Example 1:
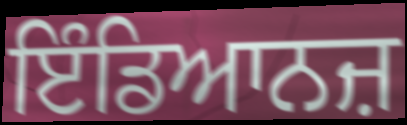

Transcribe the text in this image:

ਇੰਡਿਆਨਜ਼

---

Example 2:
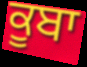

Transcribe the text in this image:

ਕੂਬਾ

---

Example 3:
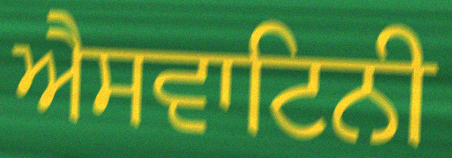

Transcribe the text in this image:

ਐਸਵਾਟਿਨੀ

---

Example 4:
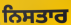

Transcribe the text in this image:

ਨਿਸਤਾਰ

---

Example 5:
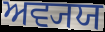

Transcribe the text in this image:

ਅਵ੍ਯਯ